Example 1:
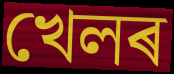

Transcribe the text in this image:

খেলৰ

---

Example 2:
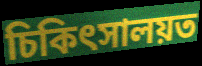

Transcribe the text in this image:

চিকিৎসালয়ত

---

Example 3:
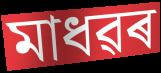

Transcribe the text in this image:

মাধৱৰ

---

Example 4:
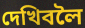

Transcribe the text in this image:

দেখিবলৈ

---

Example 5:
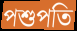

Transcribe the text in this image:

পশুপতি